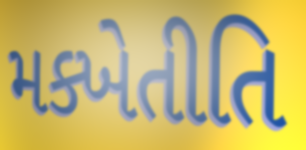
મક્ખેતીતિ